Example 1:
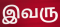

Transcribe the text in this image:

இவரு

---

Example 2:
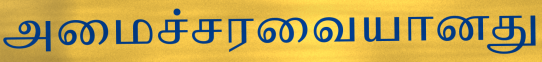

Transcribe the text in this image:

அமைச்சரவையானது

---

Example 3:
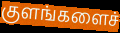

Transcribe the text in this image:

குளங்களைச்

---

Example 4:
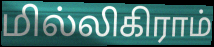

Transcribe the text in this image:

மில்லிகிராம்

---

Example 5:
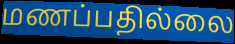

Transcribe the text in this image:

மணப்பதில்லை